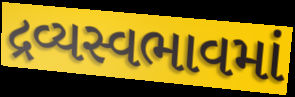
દ્રવ્યસ્વભાવમાં